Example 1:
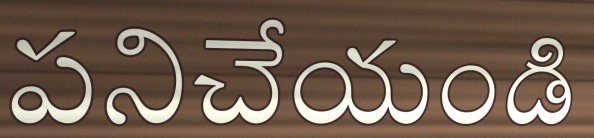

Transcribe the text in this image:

పనిచేయండి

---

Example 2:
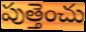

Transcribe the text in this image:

పుత్తెంచు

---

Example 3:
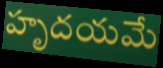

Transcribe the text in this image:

హృదయమే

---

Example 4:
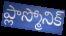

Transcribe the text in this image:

ప్లాస్మోనిక్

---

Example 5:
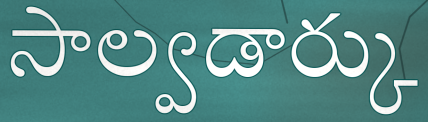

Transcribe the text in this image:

సాల్వడార్కు